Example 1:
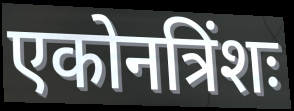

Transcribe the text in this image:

एकोनत्रिंशः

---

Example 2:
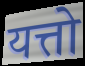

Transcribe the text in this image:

यत्तो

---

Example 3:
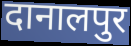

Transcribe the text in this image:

दानालपुर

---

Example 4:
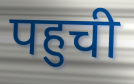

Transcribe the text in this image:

पहुची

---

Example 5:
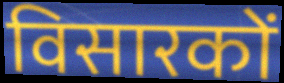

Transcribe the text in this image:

विसारकों